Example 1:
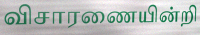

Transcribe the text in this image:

விசாரணையின்றி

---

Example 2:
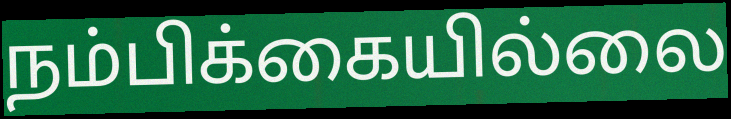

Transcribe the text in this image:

நம்பிக்கையில்லை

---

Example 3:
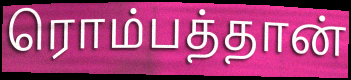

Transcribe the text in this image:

ரொம்பத்தான்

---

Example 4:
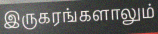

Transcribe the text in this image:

இருகரங்களாலும்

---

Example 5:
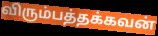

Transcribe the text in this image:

விரும்பத்தக்கவன்